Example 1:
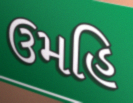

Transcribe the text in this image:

ઉમહિ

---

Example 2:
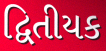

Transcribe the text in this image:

દ્વિતીયક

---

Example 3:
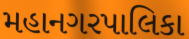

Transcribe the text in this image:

મહાનગરપાલિકા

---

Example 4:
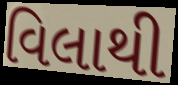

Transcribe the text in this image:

વિલાથી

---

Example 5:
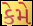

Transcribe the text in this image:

કેમે